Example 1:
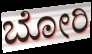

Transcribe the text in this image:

ಬೋರಿ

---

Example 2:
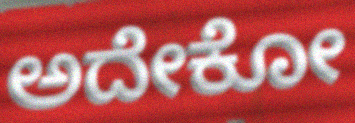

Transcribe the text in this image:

ಅದೇಕೋ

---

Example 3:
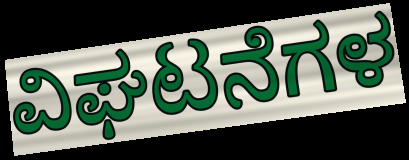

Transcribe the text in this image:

ವಿಘಟನೆಗಳ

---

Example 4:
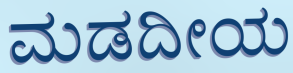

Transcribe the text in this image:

ಮಡದೀಯ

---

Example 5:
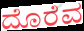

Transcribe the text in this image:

ದೊರೆವ